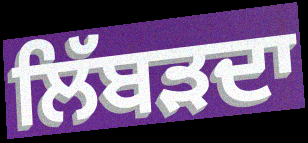
ਲਿੱਬੜਦਾ